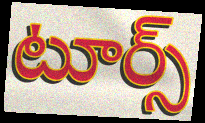
టూర్స్